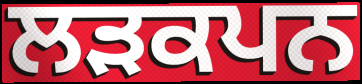
ਲੜਕਪਨ